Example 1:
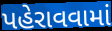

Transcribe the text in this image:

પહેરાવવામાં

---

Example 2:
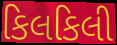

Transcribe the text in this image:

કિલકિલી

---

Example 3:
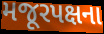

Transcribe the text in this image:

મજૂરપક્ષના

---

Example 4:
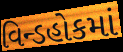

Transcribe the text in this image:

વિન્ડહોકમાં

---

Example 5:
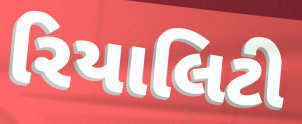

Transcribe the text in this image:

રિયાલિટી